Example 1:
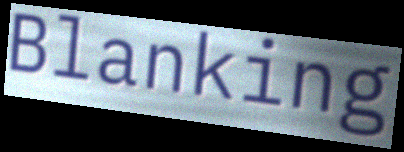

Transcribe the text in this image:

Blanking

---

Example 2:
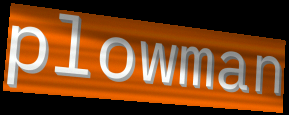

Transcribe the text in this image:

plowman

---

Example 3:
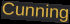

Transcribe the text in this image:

Cunning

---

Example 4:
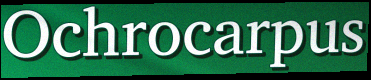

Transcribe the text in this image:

Ochrocarpus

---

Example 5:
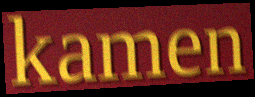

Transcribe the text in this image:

kamen